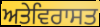
ਅਤੇਵਿਰਾਸਤ